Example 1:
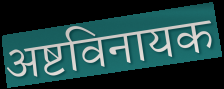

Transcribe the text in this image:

अष्टविनायक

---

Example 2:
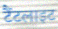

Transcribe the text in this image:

टैंटलाइट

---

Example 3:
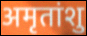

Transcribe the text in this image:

अमृतांशु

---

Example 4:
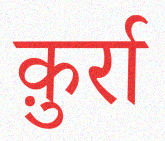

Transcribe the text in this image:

क़ुर्रा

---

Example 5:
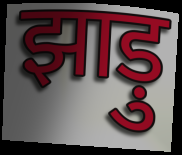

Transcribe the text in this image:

झाड़ु